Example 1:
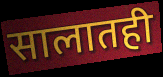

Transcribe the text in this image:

सालातही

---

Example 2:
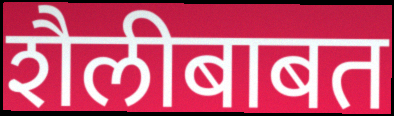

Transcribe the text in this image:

शैलीबाबत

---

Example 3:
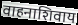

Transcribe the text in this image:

वाहनाशिवाय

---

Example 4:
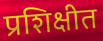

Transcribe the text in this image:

प्रशिक्षीत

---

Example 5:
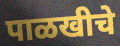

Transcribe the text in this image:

पाळखीचे